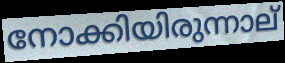
നോക്കിയിരുന്നാല്